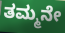
ತಮ್ಮನೇ